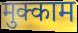
मुक्काम